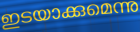
ഇടയാക്കുമെന്നു